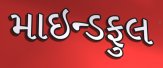
માઇન્ડફુલ